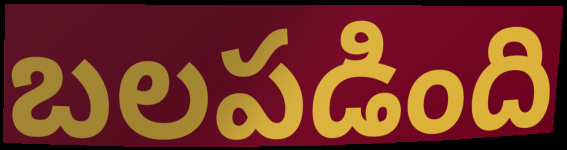
బలపడింది